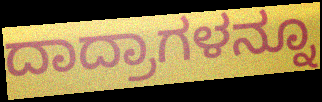
ದಾದ್ರಾಗಳನ್ನೂ